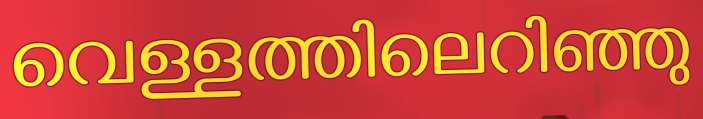
വെള്ളത്തിലെറിഞ്ഞു